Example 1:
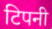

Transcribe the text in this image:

टिपनी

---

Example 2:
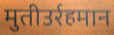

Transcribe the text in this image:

मुतीउर्रहमान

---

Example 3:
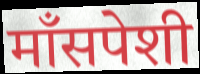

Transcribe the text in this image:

माँसपेशी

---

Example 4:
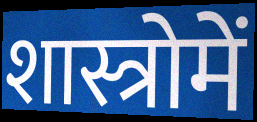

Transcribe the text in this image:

शास्त्रोमें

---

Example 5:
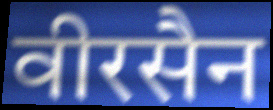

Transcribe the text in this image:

वीरसैन